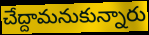
చేద్దామనుకున్నారు